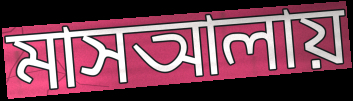
মাসআলায়